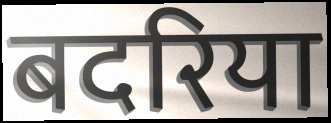
बदरिया